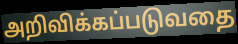
அறிவிக்கப்படுவதை